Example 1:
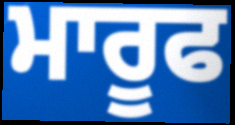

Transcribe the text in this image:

ਮਾਰੂਫ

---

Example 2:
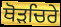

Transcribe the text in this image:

ਥੋੜਚਿਰੇ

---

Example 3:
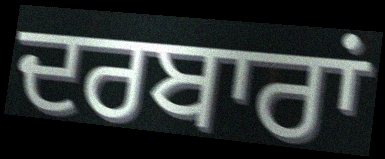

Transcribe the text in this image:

ਦਰਬਾਰਾਂ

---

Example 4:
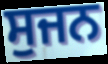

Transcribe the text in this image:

ਸੁਜਨ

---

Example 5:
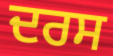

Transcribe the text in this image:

ਦਰਸ